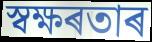
স্বক্ষৰতাৰ